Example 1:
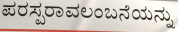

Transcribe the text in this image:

ಪರಸ್ಪರಾವಲಂಬನೆಯನ್ನು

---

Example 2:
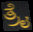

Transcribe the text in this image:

ತ್ರೈ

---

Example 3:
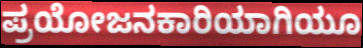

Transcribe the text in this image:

ಪ್ರಯೋಜನಕಾರಿಯಾಗಿಯೂ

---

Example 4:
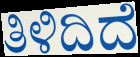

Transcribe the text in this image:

ತಿಳಿದಿದೆ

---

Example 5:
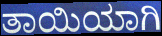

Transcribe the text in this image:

ತಾಯಿಯಾಗಿ